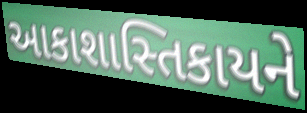
આકાશાસ્તિકાયને